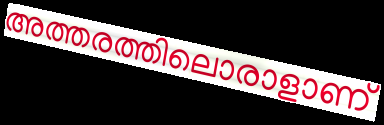
അത്തരത്തിലൊരാളാണ്